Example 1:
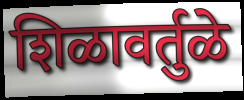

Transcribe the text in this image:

शिळावर्तुळे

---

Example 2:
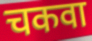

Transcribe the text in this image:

चकवा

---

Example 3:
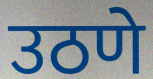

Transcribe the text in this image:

उठणे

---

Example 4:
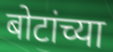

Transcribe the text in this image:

बोटांच्या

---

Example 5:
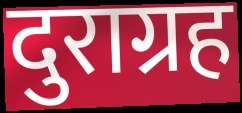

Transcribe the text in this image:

दुराग्रह